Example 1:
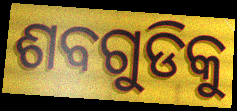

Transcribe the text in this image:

ଶବଗୁଡିକୁ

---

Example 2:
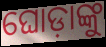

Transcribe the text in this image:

ଘୋଡ଼ାଙ୍କୁ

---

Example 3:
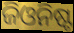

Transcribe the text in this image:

ଜିଓନିଷ୍ଟ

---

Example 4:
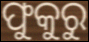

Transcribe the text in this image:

ଫୁକୁରୁ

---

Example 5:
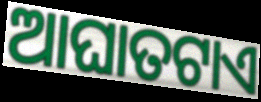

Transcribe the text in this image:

ଆଘାତଟାଏ